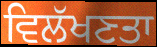
ਵਿਲੱਖਣਤਾ